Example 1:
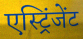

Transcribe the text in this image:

एस्ट्रिंजेंट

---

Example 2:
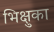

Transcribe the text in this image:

भिक्षुका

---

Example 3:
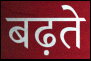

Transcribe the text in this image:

बढ़ते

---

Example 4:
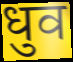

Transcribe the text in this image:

धुव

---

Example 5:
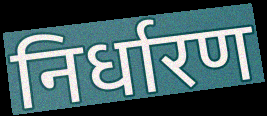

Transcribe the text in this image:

निर्धारण